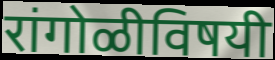
रांगोळीविषयी